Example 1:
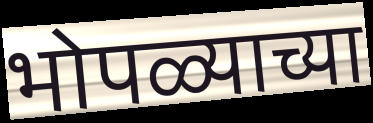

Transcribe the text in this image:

भोपळ्याच्या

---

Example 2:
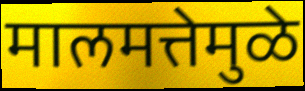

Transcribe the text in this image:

मालमत्तेमुळे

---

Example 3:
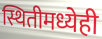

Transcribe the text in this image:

स्थितीमध्येही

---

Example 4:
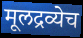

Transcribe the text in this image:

मूलद्रव्येच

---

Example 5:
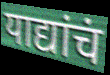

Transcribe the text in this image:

याद्यांचं